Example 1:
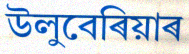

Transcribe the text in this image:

উলুবেৰিয়াৰ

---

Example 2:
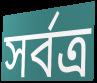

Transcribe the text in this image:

সৰ্বত্ৰ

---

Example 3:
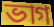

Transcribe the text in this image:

ভাগ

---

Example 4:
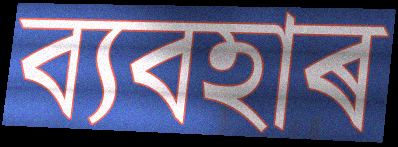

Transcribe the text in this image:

ব্যবহাৰ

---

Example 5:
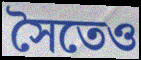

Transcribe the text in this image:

সৈতেও